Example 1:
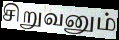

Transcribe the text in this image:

சிறுவனும்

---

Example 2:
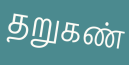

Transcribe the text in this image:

தறுகண்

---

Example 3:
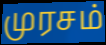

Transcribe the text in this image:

முரசம்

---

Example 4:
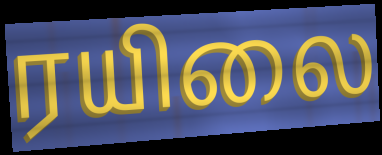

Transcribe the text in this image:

ரயிலை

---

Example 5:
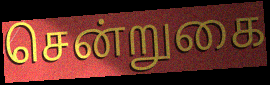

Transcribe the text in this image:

சென்றுகை